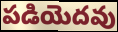
పడియెదవు